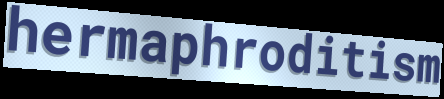
hermaphroditism